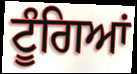
ਟੂੰਗਿਆਂ